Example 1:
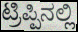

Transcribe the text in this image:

ಟ್ರಿಪ್ಪಿನಲ್ಲಿ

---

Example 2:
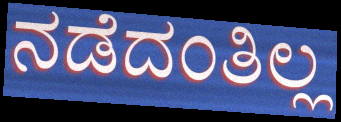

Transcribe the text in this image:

ನಡೆದಂತಿಲ್ಲ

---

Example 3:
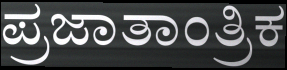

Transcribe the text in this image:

ಪ್ರಜಾತಾಂತ್ರಿಕ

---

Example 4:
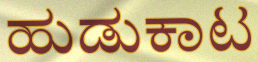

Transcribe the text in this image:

ಹುಡುಕಾಟ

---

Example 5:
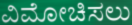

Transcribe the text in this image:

ವಿಮೋಚಿಸಲು